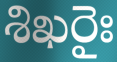
శిఖరైః